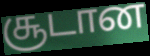
சூடான